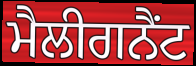
ਮੈਲੀਗਨੈਂਟ